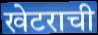
खेटराची